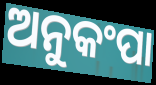
ଅନୁକଂପା